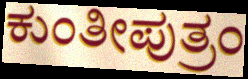
ಕುಂತೀಪುತ್ರಂ